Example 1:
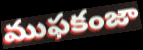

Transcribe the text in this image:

ముఫకంజా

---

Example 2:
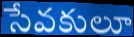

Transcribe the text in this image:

సేవకులూ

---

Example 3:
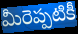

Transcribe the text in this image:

మీరెప్పటికీ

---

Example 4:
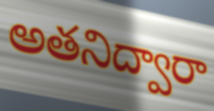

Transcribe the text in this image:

అతనిద్వారా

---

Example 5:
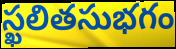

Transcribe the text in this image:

స్ఖలితసుభగం